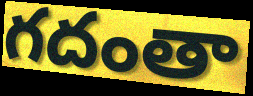
గదంతా